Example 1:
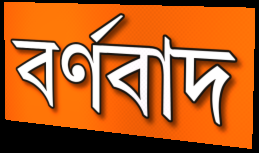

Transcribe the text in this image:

বৰ্ণবাদ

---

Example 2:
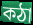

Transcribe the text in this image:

কঠা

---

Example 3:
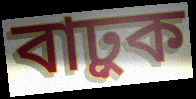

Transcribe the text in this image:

বাঢ়ুক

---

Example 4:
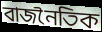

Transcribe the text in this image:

বাজনৈতিক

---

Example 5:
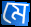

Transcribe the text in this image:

মে